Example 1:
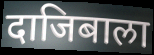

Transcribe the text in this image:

दाजिबाला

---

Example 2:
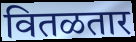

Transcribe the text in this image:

वितळतार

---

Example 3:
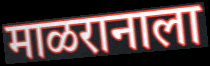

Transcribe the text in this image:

माळरानाला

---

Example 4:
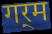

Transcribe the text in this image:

गर्म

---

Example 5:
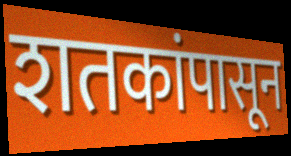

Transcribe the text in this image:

शतकांपासून